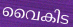
വൈകിട